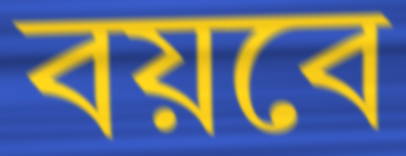
বয়বে